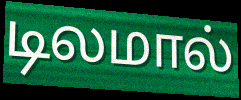
டிலமால்